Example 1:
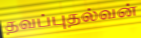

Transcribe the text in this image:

தவப்புதல்வன்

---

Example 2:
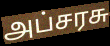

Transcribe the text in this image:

அப்சரசு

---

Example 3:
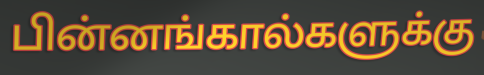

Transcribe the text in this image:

பின்னங்கால்களுக்கு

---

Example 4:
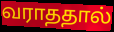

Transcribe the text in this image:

வராததால்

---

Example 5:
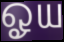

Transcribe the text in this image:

ஓய